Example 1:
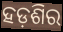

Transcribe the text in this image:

ହଡ଼ଶିର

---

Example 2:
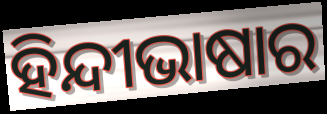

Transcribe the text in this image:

ହିନ୍ଦୀଭାଷାର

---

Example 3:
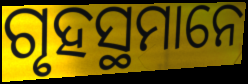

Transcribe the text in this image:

ଗୃହସ୍ଥମାନେ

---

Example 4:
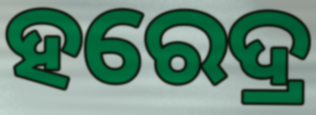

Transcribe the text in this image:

ହରେଦ୍ର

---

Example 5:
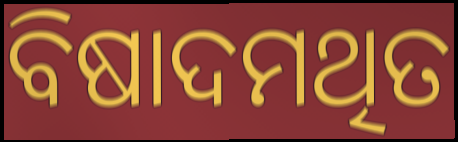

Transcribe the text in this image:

ବିଷାଦମଥିତ